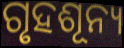
ଗୃହଶୂନ୍ୟ